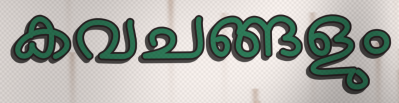
കവചങ്ങളും